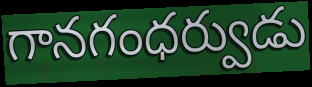
గానగంధర్వుడు